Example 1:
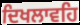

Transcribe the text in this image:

ਦਿਖਲਾਵਹਿ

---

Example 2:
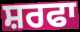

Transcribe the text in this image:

ਸ਼ਰਫਾ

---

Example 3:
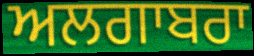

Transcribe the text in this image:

ਅਲਗਾਬਰਾ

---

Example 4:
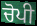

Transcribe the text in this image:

ਚੋਪੀ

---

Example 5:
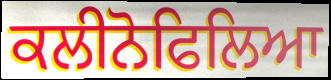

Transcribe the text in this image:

ਕਲੀਨੋਫਿਲਿਆ